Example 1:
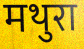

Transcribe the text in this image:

मथुरा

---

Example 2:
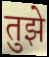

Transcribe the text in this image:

तुझे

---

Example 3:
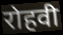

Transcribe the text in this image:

रोहवी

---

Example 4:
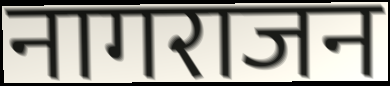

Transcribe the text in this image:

नागराजन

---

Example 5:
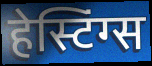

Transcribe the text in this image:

हेस्टिंग्स